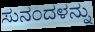
ಸುನಂದಳನ್ನು